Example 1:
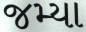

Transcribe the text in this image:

જમ્યા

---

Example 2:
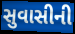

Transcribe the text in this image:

સુવાસીની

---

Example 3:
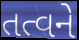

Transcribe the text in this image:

તત્વને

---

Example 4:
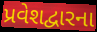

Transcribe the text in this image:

પ્રવેશદ્વારના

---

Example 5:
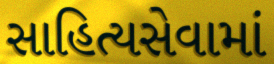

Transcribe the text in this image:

સાહિત્યસેવામાં